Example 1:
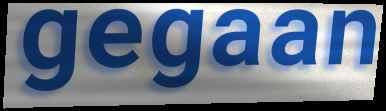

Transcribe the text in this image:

gegaan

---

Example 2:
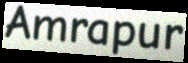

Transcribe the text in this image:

Amrapur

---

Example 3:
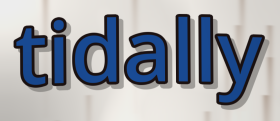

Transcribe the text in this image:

tidally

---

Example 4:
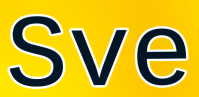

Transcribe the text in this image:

Sve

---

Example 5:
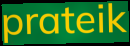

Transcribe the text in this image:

prateik